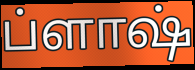
ப்ளாஷ்